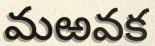
మఱవక